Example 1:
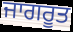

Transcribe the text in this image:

ਜਾਗਰੂਤ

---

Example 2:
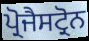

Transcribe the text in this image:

ਪ੍ਰੋਜੈਸਟ੍ਰੋਨ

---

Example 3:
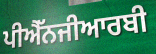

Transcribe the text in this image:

ਪੀਐੱਨਜੀਆਰਬੀ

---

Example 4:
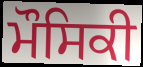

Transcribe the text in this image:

ਮੌਸਿਕੀ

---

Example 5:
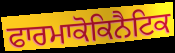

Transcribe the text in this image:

ਫਾਰਮਾਕੋਕਿਨੈਟਿਕ